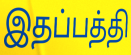
இதப்பத்தி